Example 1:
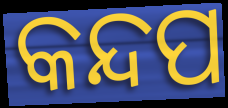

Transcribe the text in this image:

କନ୍ଦପ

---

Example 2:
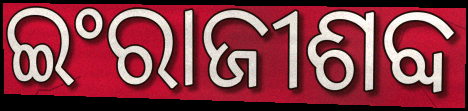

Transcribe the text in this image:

ଇଂରାଜୀଶବ୍ଦ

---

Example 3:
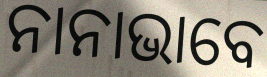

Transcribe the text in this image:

ନାନାଭାବେ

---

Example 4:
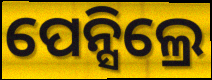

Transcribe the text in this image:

ପେନ୍ସିଲ୍ରେ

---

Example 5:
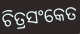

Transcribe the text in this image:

ଚିତ୍ରସଂକେତ